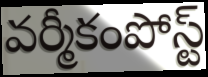
వర్మీకంపోస్ట్